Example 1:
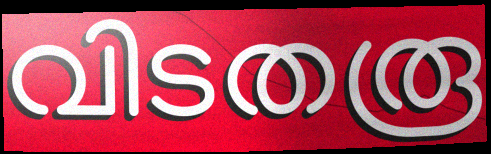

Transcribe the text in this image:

വിടതരൂ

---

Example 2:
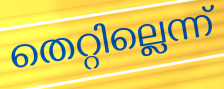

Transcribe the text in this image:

തെറ്റില്ലെന്ന്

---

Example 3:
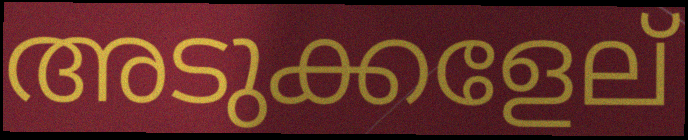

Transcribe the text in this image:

അടുക്കളേല്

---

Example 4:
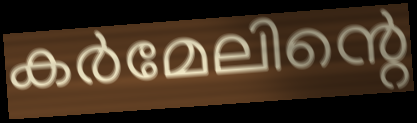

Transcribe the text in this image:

കർമേലിന്റെ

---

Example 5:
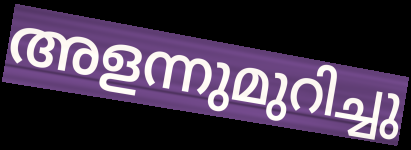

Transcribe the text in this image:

അളന്നുമുറിച്ചു